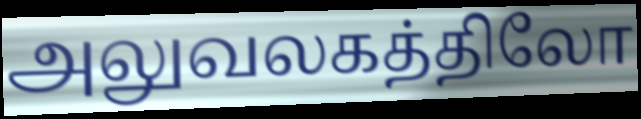
அலுவலகத்திலோ